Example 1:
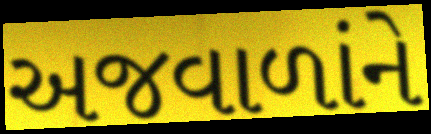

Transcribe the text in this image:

અજવાળાંને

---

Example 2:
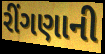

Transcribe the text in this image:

રીંગણાની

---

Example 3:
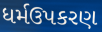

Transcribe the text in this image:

ધર્મઉપકરણ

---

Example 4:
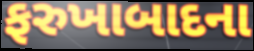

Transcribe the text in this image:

ફરુખાબાદના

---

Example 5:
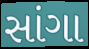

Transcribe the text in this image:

સાંગા